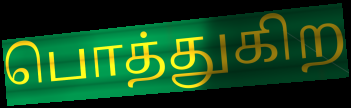
பொத்துகிற